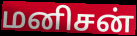
மனிசன்